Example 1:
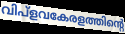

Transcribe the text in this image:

വിപ്ളവകേരളത്തിന്റെ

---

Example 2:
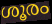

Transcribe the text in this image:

ശൂരം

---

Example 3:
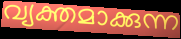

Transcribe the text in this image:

വ്യക്തമാക്കുന്ന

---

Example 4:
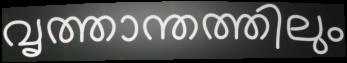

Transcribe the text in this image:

വൃത്താന്തത്തിലും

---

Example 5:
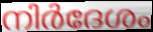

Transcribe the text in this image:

നിർദേശം